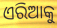
ଏରିଆକୁ